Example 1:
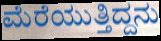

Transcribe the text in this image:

ಮೆರೆಯುತ್ತಿದ್ದನು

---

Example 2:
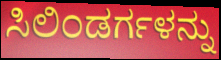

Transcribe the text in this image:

ಸಿಲಿಂಡರ್ಗಳನ್ನು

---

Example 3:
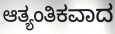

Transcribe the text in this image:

ಆತ್ಯಂತಿಕವಾದ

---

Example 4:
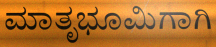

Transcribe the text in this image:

ಮಾತೃಭೂಮಿಗಾಗಿ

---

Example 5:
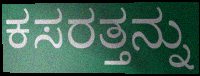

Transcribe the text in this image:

ಕಸರತ್ತನ್ನು